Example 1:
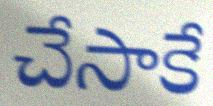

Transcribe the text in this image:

చేసాకే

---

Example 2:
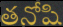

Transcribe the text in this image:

తనోషి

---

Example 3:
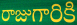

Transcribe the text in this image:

రాజుగారికి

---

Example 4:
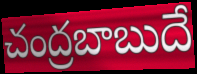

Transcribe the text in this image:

చంద్రబాబుదే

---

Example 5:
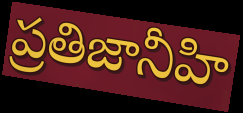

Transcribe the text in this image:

ప్రతిజానీహి